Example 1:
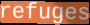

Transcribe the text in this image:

refuges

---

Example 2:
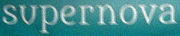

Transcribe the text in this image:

supernova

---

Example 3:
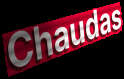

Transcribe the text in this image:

Chaudas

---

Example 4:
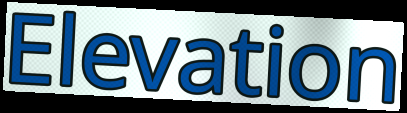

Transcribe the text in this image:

Elevation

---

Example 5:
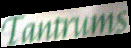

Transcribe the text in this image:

Tantrums